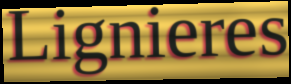
Lignieres